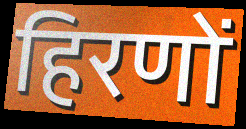
हिरणों